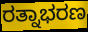
ರತ್ನಾಭರಣ